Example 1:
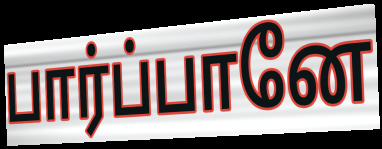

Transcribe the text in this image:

பார்ப்பானே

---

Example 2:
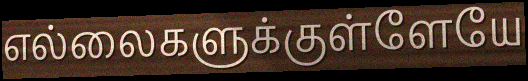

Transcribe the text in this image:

எல்லைகளுக்குள்ளேயே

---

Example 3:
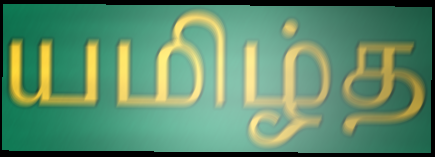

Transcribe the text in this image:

யமிழ்த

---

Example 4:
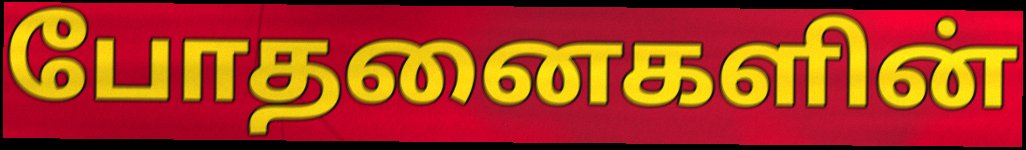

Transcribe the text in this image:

போதனைகளின்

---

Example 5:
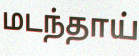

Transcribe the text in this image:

மடந்தாய்